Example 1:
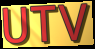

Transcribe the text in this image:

UTV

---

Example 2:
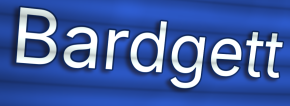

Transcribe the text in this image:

Bardgett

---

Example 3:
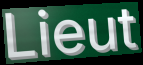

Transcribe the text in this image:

Lieut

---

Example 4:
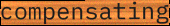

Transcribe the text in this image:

compensating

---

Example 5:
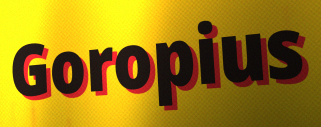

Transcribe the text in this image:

Goropius